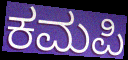
ಕಮಪಿ